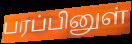
பரப்பினுள்